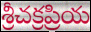
శ్రీచక్రప్రియ